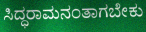
ಸಿದ್ಧರಾಮನಂತಾಗಬೇಕು